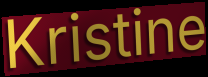
Kristine